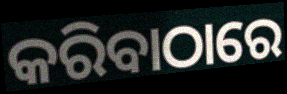
କରିବାଠାରେ